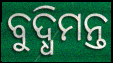
ବୁଦ୍ଧିମନ୍ତ